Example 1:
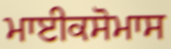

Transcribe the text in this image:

ਮਾਈਕਸੋਮਾਸ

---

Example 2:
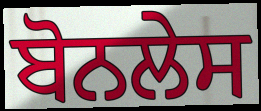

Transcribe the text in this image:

ਬੋਨਲੇਸ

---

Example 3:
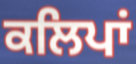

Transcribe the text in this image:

ਕਲਿਪਾਂ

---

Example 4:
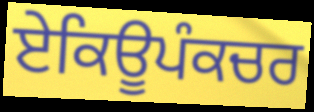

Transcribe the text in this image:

ਏਕਿਊਪੰਕਚਰ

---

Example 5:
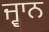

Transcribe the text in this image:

ਜ੍ਵਾਨ